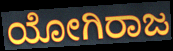
ಯೋಗಿರಾಜ